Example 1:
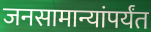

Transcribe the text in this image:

जनसामान्यांपर्यंत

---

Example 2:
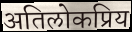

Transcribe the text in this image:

अतिलोकप्रिय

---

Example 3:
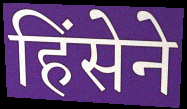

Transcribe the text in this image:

हिंसेने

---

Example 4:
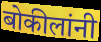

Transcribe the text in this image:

बोकीलांनी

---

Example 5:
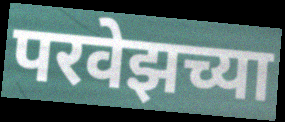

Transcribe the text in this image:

परवेझच्या